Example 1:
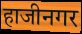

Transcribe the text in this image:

हाजीनगर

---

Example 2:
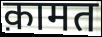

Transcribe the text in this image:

क़ामत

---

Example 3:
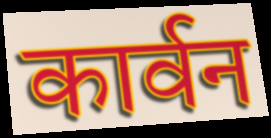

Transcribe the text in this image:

कार्वन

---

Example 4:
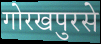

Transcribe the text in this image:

गोरखपुरसे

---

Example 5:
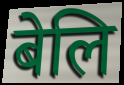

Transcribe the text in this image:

बेलि